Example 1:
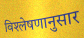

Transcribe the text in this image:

विश्लेषणानुसार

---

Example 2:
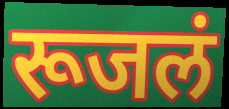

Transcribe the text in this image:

रूजलं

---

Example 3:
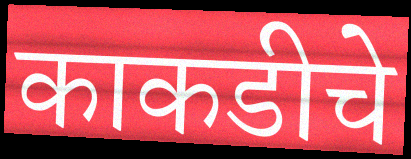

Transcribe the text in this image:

काकडीचे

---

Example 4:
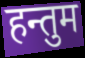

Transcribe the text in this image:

हन्तुम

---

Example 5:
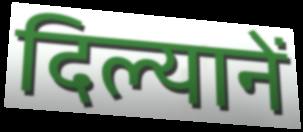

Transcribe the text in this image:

दिल्यानें